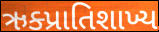
ઋક્પ્રાતિશાખ્ય